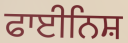
ਫਾਈਨਿਸ਼